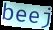
beej